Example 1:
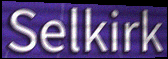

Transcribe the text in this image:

Selkirk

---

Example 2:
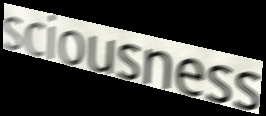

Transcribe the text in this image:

sciousness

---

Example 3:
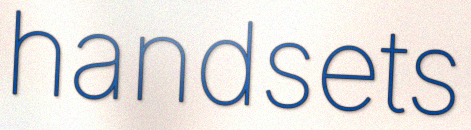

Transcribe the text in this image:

handsets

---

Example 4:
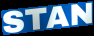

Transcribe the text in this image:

STAN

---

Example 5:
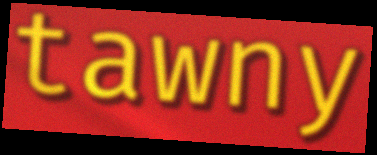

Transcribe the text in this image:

tawny